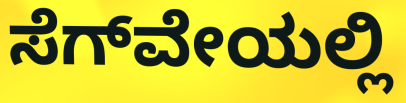
ಸೆಗ್‌ವೇಯಲ್ಲಿ